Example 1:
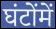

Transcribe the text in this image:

घंटोंमें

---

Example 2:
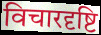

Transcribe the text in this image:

विचारदृष्टि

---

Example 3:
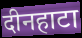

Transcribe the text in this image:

दीनहाटा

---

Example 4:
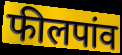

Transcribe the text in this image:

फीलपांव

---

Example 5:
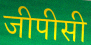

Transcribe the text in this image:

जीपीसी